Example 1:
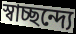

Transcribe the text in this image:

স্বাচ্ছন্দ্যে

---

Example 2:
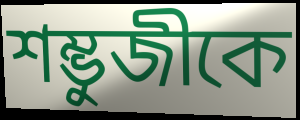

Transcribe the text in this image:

শম্ভুজীকে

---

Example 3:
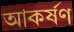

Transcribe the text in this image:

আকর্ষণ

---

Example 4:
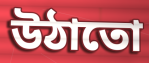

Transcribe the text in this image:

উঠাতো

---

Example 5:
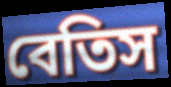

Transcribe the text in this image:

বেতিস